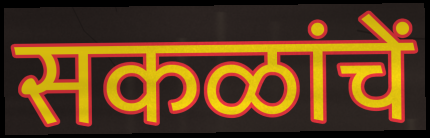
सकळांचें